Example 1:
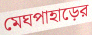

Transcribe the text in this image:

মেঘপাহাড়ের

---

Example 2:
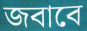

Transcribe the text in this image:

জবাবে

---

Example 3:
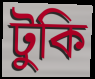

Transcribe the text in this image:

টুকি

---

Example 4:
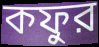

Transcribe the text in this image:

কফুর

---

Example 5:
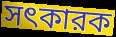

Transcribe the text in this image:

সৎকারক